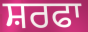
ਸ਼ਰਫਾ